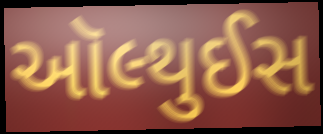
ઑલ્થુઈસ